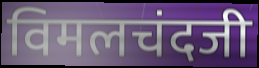
विमलचंदजी